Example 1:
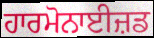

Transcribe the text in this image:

ਹਾਰਮੋਨਾਈਜ਼ਡ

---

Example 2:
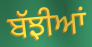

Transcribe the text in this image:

ਬੱਝੀਆਂ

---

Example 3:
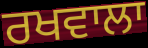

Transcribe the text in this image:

ਰਖਵਾਲਾ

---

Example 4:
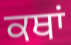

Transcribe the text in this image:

ਕਥਾਂ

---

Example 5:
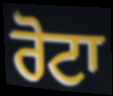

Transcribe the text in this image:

ਰੋਟਾ